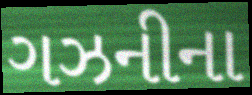
ગઝનીના